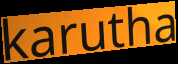
karutha